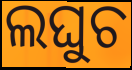
ଲଘୁଚ